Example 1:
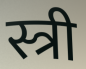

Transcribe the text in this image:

स्त्री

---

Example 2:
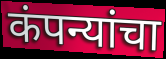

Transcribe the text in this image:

कंपन्यांचा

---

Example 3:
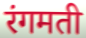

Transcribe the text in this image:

रंगमती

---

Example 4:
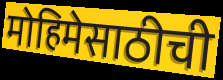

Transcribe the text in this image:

मोहिमेसाठीची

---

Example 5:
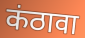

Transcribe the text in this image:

कंठावा